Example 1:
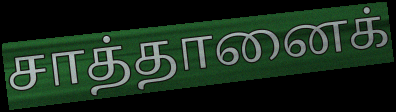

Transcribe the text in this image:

சாத்தானைக்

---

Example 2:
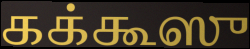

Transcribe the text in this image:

கக்கூஸு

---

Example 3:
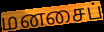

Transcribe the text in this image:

மனசைப்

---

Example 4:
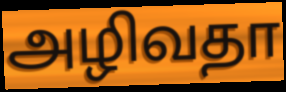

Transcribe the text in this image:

அழிவதா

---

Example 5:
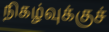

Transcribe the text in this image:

நிகழ்வுக்குச்